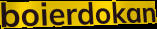
boierdokan